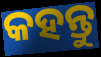
କହନ୍ତୁ